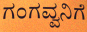
ಗಂಗವ್ವನಿಗೆ